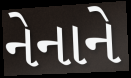
નેનાને